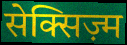
सेक्सिज़्म